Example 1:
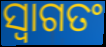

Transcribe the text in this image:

ସ୍ୱାଗତଂ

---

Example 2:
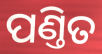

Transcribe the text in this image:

ପଣ୍ତିତ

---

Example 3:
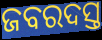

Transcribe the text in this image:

ଜବରଦସ୍ତ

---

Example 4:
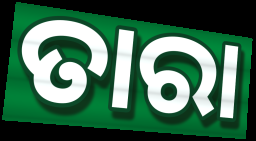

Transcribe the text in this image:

ତାରା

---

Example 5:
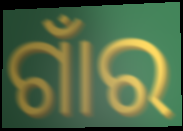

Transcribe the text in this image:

ଗାଁର